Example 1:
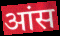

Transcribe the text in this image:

आंस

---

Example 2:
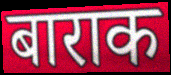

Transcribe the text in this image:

बाराक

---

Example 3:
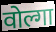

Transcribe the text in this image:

वोल्गा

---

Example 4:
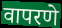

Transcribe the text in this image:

वापरणे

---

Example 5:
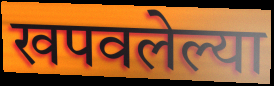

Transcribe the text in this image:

खपवलेल्या